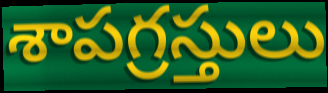
శాపగ్రస్తులు